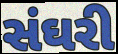
સંઘરી